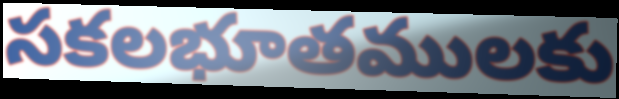
సకలభూతములకు